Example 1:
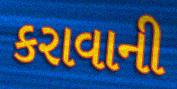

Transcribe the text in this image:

કરાવાની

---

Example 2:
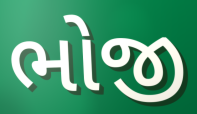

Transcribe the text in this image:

ભોજી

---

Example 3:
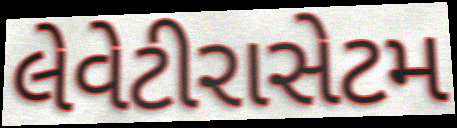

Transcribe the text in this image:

લેવેટીરાસેટમ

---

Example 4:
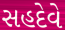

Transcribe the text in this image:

સહદેવે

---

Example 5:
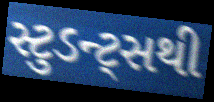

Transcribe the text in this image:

સ્ટુડન્ટ્સથી